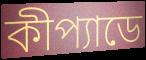
কীপ্যাডে